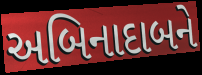
અબિનાદાબને